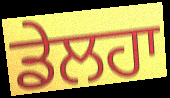
ਡੇਲਹਾ